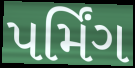
પર્મિંગ